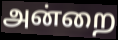
அன்றை